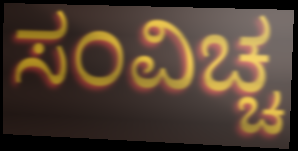
ಸಂವಿಚ್ಚ